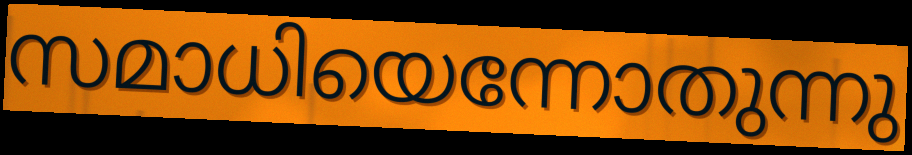
സമാധിയെന്നോതുന്നു